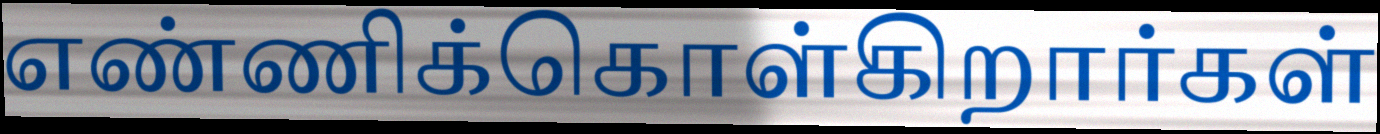
எண்ணிக்கொள்கிறார்கள்